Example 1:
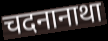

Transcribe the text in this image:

चदनानाथा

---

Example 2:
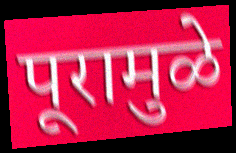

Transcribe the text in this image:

पूरामुळे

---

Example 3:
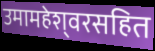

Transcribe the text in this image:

उमामहेश्वरसहित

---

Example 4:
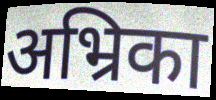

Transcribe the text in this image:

अभ्रिका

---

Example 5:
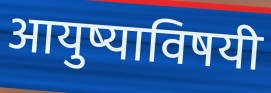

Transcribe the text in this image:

आयुष्याविषयी